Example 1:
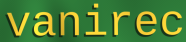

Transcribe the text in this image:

vanirec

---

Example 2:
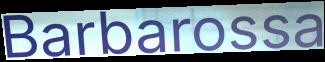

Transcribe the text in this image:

Barbarossa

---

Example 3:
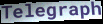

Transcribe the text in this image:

Telegraph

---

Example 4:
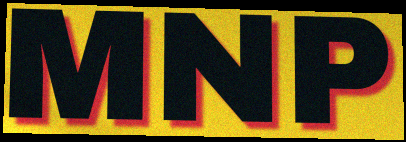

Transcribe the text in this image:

MNP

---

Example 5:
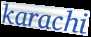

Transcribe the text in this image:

karachi